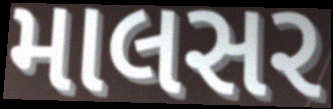
માલસર